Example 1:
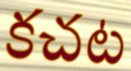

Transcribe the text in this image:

కచట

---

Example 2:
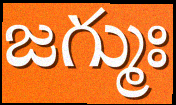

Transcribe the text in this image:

జగ్ముః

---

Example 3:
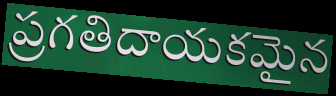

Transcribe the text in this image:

ప్రగతిదాయకమైన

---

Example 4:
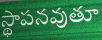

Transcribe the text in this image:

స్థాపనవుతూ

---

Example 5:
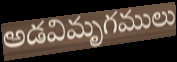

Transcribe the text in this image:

అడవిమృగములు